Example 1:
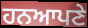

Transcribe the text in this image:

ਹਨਆਪਣੇ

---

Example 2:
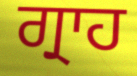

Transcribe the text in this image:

ਗ੍ਰਾਹ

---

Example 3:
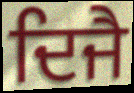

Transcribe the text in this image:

ਦਿਜੈ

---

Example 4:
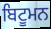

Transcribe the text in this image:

ਬਿਟੂਮਨ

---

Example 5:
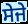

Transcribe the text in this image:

ਸੇਜੇ